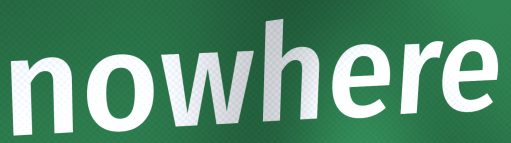
nowhere